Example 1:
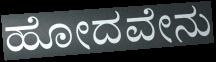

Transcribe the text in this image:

ಹೋದವೇನು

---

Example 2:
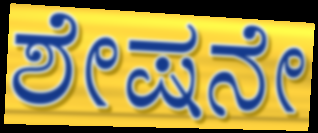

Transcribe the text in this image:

ಶೇಷನೇ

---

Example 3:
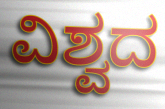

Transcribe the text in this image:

ವಿಶ್ವದ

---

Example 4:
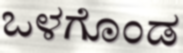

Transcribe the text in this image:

ಒಳಗೊಂಡ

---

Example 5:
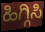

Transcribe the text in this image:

ಹಿಗ್ಗಿಸಿ